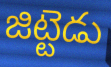
జిట్టెడు